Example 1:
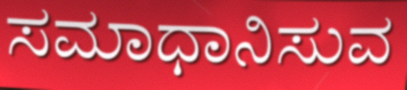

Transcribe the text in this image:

ಸಮಾಧಾನಿಸುವ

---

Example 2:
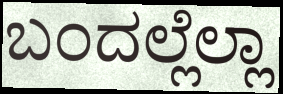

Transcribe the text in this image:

ಬಂದಲ್ಲೆಲ್ಲಾ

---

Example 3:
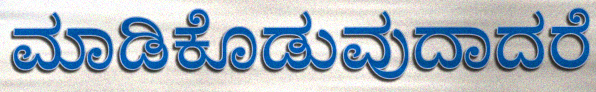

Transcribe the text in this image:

ಮಾಡಿಕೊಡುವುದಾದರೆ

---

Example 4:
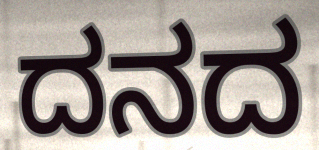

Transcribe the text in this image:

ದನದ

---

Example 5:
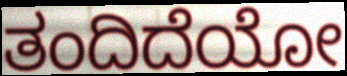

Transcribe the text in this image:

ತಂದಿದೆಯೋ